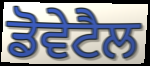
ਡੋਵੇਟੈਲ